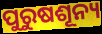
ପୁରୁଷଶୂନ୍ୟ